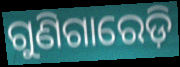
ଗୁଣିଗାରେଡ଼ି